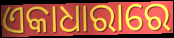
ଏକାଧାରାରେ